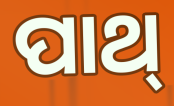
ପାଥ୍